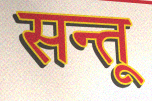
सन्तू